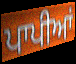
ਪਾਪੀਆਂ